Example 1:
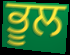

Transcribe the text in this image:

ਭੂਲ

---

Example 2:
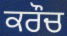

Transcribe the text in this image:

ਕਰੌਚ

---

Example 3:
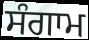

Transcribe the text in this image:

ਸੰਗਾਮ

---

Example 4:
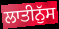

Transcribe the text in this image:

ਲਾਤੀਨੁੱਸ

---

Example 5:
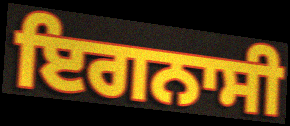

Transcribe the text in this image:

ਇਗਨਾਸੀ